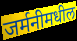
जर्मनीमधील